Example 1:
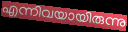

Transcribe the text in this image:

എന്നിവയായിരുന്നു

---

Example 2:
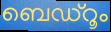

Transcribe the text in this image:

ബെഡ്റൂം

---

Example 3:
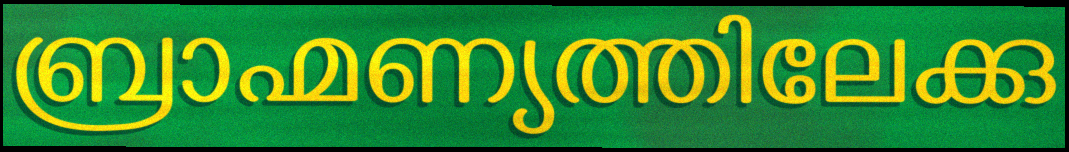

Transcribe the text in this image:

ബ്രാഹ്മണ്യത്തിലേക്കു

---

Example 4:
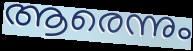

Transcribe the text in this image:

ആരെന്നും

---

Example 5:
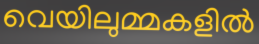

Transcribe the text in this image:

വെയിലുമ്മകളിൽ